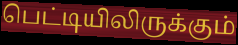
பெட்டியிலிருக்கும்